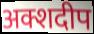
अक्शदीप